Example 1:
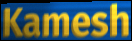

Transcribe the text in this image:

Kamesh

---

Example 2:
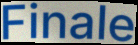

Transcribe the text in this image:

Finale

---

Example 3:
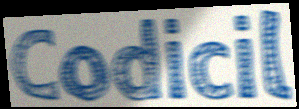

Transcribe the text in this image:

Codicil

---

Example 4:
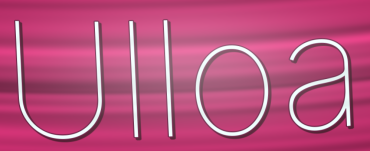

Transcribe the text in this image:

Ulloa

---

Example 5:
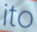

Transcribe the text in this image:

ito